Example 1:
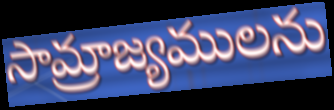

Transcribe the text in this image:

సామ్రాజ్యములను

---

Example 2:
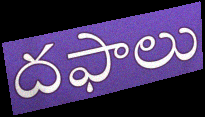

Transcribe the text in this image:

దఫాలు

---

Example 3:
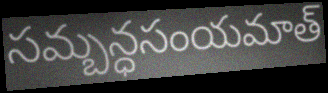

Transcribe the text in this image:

సమ్బన్ధసంయమాత్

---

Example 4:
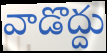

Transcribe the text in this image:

వాడొద్దు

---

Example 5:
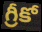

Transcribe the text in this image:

గ్రీకో